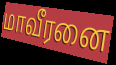
மாவீரனை